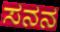
ಸನನ